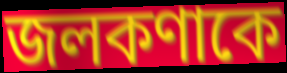
জলকণাকে